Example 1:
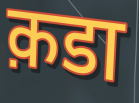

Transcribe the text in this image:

क़डा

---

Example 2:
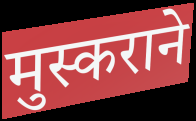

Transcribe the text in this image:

मुस्कराने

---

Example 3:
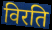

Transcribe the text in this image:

विरति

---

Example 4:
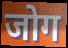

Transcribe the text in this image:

जोग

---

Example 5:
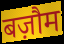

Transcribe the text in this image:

बज़ौम